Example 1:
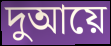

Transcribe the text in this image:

দুআয়ে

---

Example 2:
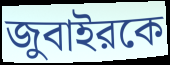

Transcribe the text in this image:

জুবাইরকে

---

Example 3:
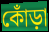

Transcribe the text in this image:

কোঁড়া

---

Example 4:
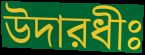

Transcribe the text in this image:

উদারধীঃ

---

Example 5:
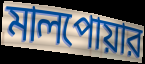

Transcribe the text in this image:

মালপোয়ার